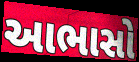
આભાસો